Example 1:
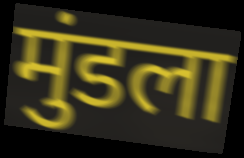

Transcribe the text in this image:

मुंडला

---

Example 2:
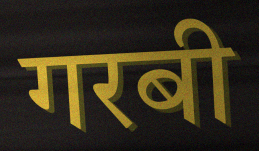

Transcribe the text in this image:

गरबी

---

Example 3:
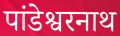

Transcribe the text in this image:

पांडेश्वरनाथ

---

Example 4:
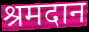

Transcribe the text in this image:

श्रमदान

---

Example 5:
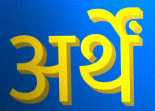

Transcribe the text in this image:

अर्थें